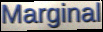
Marginal